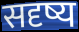
सदृष्य